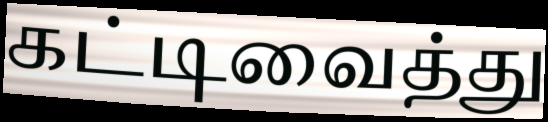
கட்டிவைத்து